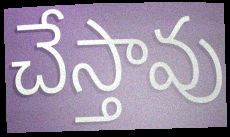
చేస్తావు